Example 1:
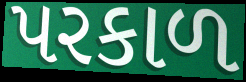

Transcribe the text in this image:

પરકાળ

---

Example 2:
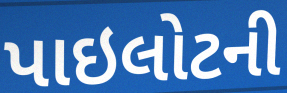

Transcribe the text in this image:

પાઇલોટની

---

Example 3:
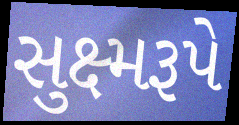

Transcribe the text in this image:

સુક્ષ્મરૂપે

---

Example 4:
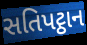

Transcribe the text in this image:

સતિપટ્ઠાન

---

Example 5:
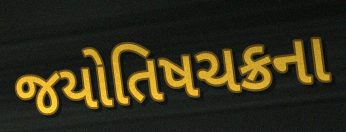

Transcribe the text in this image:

જયોતિષચક્રના